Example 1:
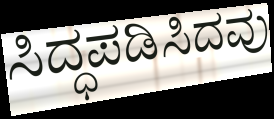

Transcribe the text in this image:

ಸಿದ್ಧಪಡಿಸಿದವು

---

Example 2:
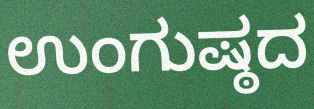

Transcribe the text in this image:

ಉಂಗುಷ್ಠದ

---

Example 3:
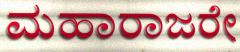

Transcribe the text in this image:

ಮಹಾರಾಜರೇ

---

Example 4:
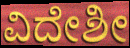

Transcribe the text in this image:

ವಿದೇಶೀ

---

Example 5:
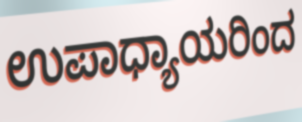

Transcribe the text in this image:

ಉಪಾಧ್ಯಾಯರಿಂದ